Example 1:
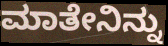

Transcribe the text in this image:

ಮಾತೇನಿನ್ನು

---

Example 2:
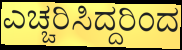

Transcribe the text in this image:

ಎಚ್ಚರಿಸಿದ್ದರಿಂದ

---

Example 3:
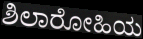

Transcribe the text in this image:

ಶಿಲಾರೋಹಿಯ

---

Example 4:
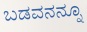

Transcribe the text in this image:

ಬಡವನನ್ನೂ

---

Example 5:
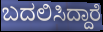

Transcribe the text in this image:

ಬದಲಿಸಿದ್ದಾರೆ